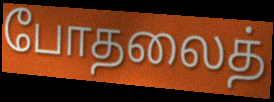
போதலைத்